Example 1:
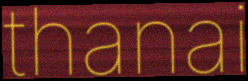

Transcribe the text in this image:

thanai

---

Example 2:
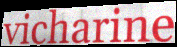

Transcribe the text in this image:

vicharine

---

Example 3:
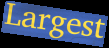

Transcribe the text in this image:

Largest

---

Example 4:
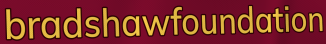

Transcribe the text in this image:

bradshawfoundation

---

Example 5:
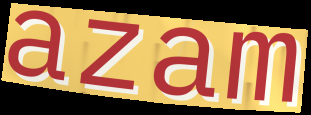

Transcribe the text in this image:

azam